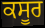
ਕਸੂਰ